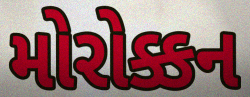
મોરોક્કન